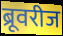
ब्रूवरीज